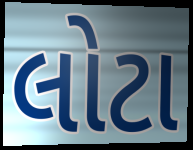
લોટા